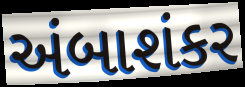
અંબાશંકર